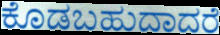
ಕೊಡಬಹುದಾದರೆ